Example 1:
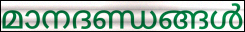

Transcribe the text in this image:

മാനദണ്ഡങ്ങൾ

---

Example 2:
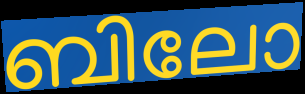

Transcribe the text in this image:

ബിലോ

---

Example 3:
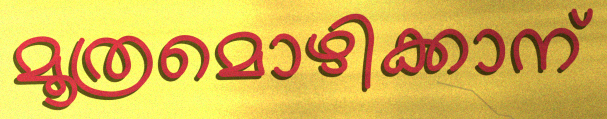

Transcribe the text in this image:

മൂത്രമൊഴിക്കാന്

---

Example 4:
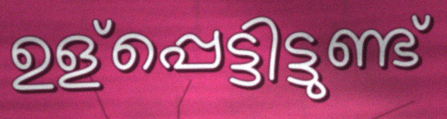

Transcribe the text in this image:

ഉള്പ്പെട്ടിട്ടുണ്ട്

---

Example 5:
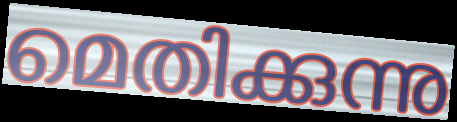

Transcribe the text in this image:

മെതിക്കുന്നു